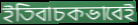
ইতিবাচকভাবেই